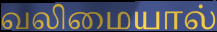
வலிமையால்